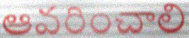
ఆవరించాలి